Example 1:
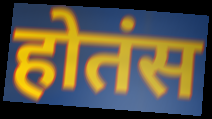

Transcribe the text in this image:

होतंस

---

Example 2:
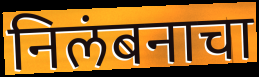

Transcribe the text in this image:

निलंबनाचा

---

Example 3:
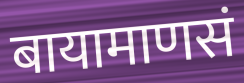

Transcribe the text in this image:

बायामाणसं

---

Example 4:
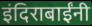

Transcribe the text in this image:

इंदिराबाईंनी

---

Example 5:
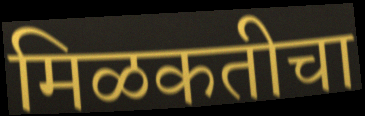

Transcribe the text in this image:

मिळकतीचा